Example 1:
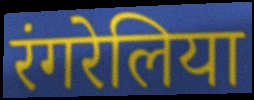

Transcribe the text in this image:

रंगरेलिया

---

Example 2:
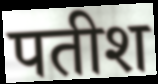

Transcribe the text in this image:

पतीश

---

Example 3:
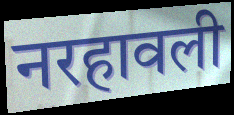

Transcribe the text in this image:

नरहावली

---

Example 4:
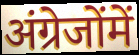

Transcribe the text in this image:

अंग्रेजोंमें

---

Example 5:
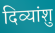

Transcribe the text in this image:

दिव्यांशु